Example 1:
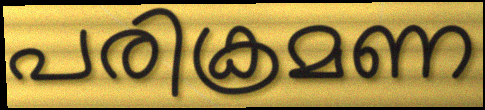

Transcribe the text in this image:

പരിക്രമണ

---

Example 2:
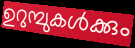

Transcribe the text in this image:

ഉറുമ്പുകൾക്കും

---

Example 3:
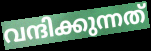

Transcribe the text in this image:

വന്ദിക്കുന്നത്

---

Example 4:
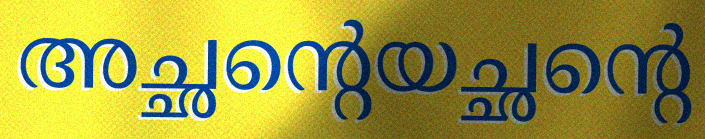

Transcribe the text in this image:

അച്ഛന്റെയച്ഛന്റെ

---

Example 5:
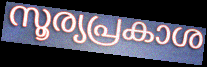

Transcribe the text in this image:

സൂര്യപ്രകാശ